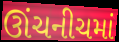
ઊંચનીચમાં